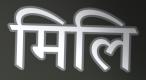
मिलि